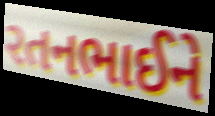
રતનભાઈને